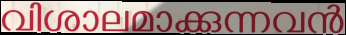
വിശാലമാക്കുന്നവൻ